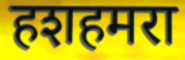
हशहमरा